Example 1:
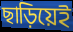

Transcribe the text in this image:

ছাড়িয়েই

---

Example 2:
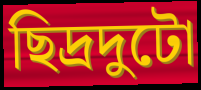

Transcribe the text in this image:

ছিদ্রদুটো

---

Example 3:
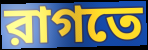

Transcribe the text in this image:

রাগতে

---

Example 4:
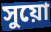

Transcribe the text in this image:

সুয়ো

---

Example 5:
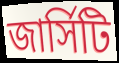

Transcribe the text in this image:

জার্সিটি